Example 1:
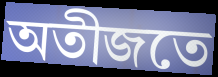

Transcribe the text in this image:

অতীজতে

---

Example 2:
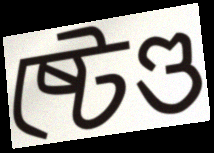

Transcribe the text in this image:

ষ্টেণ্ড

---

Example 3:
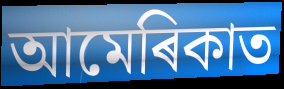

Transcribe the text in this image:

আমেৰিকাত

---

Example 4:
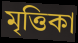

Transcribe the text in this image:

মৃত্তিকা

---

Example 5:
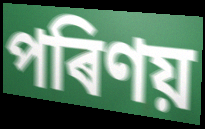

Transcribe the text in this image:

পৰিণয়